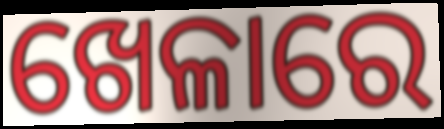
ଖେଳାରେ